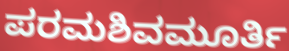
ಪರಮಶಿವಮೂರ್ತಿ